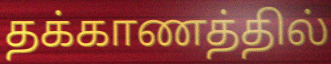
தக்காணத்தில்